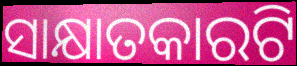
ସାକ୍ଷାତକାରଟି